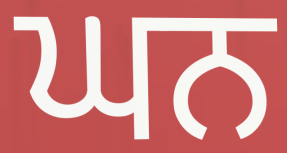
ਘਨ